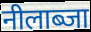
नीलाब्जा